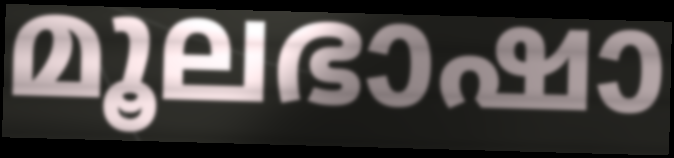
മൂലഭാഷാ